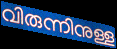
വിരുന്നിനുള്ള